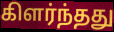
கிளர்ந்தது